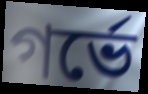
গর্ভে